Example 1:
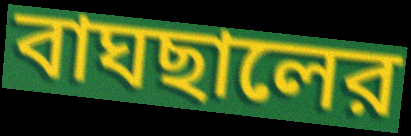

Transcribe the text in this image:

বাঘছালের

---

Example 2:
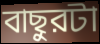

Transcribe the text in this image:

বাছুরটা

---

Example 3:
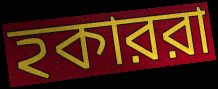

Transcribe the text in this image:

হকাররা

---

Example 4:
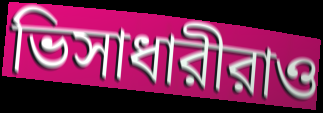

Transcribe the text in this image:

ভিসাধারীরাও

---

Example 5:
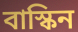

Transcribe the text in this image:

বাস্কিন